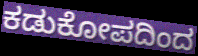
ಕಡುಕೋಪದಿಂದ